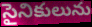
సైనికులును